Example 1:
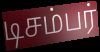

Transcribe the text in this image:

டிசம்பர்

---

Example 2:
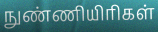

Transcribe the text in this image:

நுண்ணியிரிகள்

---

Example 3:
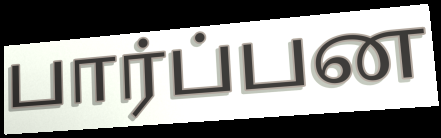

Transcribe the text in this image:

பார்ப்பன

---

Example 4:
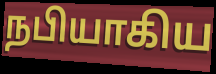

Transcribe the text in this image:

நபியாகிய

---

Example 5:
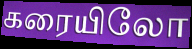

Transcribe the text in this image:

கரையிலோ